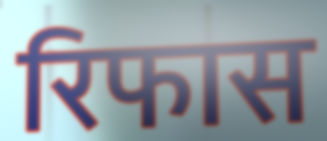
रिफास